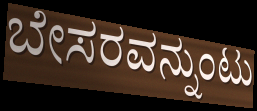
ಬೇಸರವನ್ನುಂಟು